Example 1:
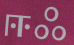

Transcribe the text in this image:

ஈஃ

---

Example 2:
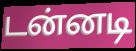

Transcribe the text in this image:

டன்னடி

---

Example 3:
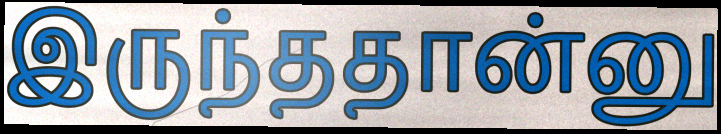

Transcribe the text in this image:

இருந்ததான்னு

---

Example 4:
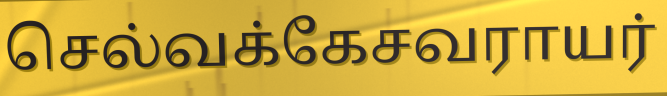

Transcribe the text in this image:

செல்வக்கேசவராயர்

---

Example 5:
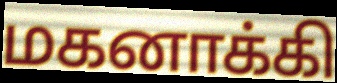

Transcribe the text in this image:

மகனாக்கி